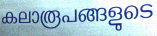
കലാരൂപങ്ങളുടെ